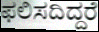
ಫಲಿಸದಿದ್ದರೆ